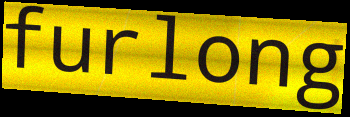
furlong